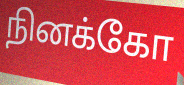
நினக்கோ